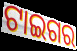
ଟାଇଗର